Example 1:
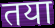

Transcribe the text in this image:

तया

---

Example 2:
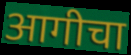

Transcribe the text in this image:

आगीचा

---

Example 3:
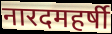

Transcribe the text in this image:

नारदमहर्षी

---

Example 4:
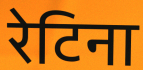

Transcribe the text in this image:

रेटिना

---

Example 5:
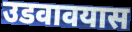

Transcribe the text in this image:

उडवावयास